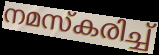
നമസ്‌കരിച്ച്